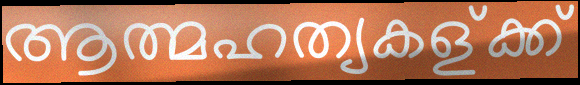
ആത്മഹത്യകള്ക്ക്